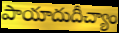
పాయాదుదీచ్యాం